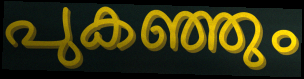
പുകഞ്ഞും